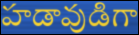
హడావుడిగా